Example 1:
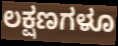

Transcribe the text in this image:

ಲಕ್ಷಣಗಳೂ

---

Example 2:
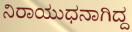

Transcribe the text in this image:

ನಿರಾಯುಧನಾಗಿದ್ದ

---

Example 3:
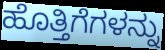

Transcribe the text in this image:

ಹೊತ್ತಿಗೆಗಳನ್ನು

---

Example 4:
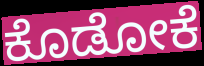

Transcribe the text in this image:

ಕೊಡೋಕೆ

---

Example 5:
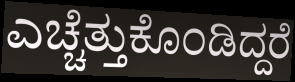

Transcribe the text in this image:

ಎಚ್ಚೆತ್ತುಕೊಂಡಿದ್ದರೆ